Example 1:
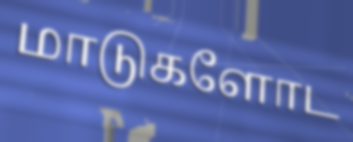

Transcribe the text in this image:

மாடுகளோட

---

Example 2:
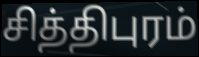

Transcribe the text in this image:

சித்திபுரம்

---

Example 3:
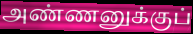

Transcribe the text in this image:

அண்ணனுக்குப்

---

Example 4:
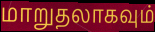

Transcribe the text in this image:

மாறுதலாகவும்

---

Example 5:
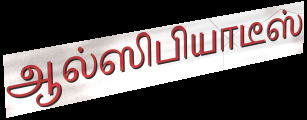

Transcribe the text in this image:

ஆல்ஸிபியாடீஸ்